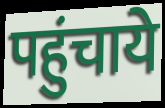
पहुंचाये